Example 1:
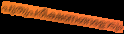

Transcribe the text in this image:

പുതുപരീക്ഷണങ്ങളോടും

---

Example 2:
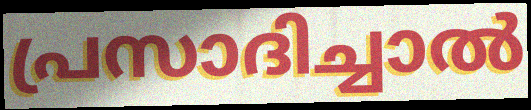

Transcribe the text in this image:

പ്രസാദിച്ചാൽ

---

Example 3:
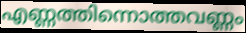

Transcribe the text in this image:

എണ്ണത്തിന്നൊത്തവണ്ണം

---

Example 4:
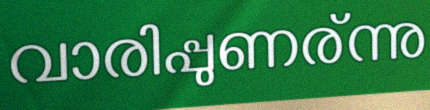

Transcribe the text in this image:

വാരിപ്പുണര്ന്നു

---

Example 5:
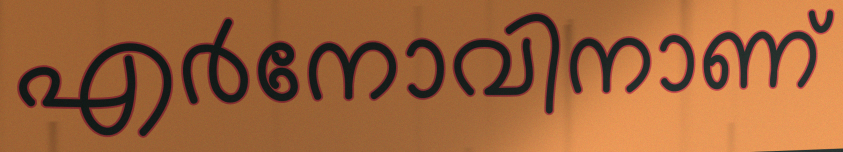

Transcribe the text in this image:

എർനോവിനാണ്